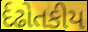
ર્દઢોતકીય